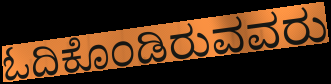
ಓದಿಕೊಂಡಿರುವವರು